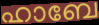
ഹാബേ